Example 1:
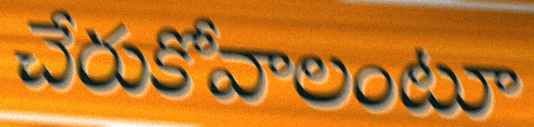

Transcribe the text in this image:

చేరుకోవాలంటూ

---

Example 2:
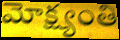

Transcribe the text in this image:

మోక్ష్యంతి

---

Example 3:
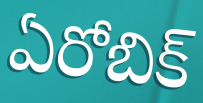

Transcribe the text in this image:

ఏరోబిక్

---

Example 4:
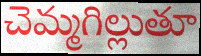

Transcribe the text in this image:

చెమ్మగిల్లుతూ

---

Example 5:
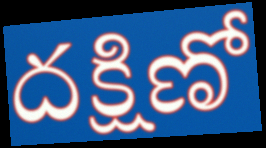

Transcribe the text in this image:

దక్షిణో